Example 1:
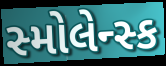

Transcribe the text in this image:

સ્મોલેન્સ્ક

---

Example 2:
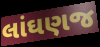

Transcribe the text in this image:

લાંઘણજ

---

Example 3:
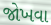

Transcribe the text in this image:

જોખવા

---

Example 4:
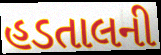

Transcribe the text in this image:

હડતાલની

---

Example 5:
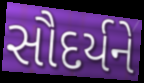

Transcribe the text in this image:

સૌદર્યને